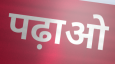
पढ़ाओ